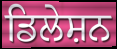
ਡਿਲੇਸ਼ਨ